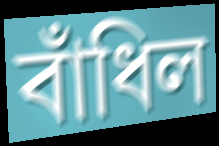
বাঁধিল